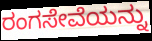
ರಂಗಸೇವೆಯನ್ನು